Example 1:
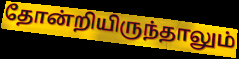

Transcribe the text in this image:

தோன்றியிருந்தாலும்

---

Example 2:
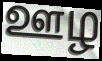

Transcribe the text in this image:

ஊழ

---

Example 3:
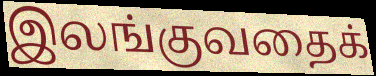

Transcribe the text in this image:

இலங்குவதைக்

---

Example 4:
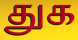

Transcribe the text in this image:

துக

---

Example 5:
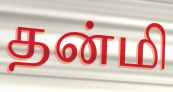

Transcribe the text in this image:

தன்மி